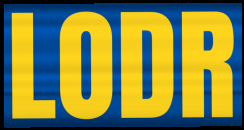
LODR